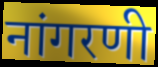
नांगरणी